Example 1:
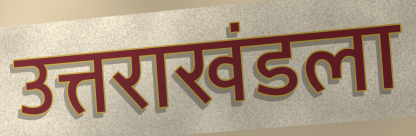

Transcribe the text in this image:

उत्तराखंडला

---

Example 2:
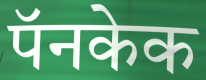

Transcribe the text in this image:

पॅनकेक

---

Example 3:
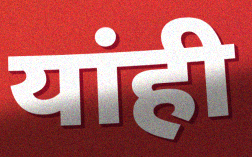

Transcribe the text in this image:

यांही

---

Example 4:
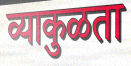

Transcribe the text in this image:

व्याकुळता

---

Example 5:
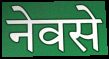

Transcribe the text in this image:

नेवसे